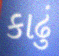
કાઢું